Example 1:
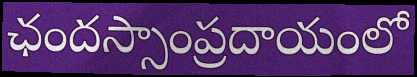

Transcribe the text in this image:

ఛందస్సాంప్రదాయంలో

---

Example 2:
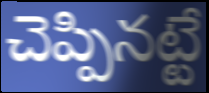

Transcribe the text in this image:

చెప్పినట్టే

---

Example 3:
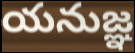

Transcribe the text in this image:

యనుజ్ఞ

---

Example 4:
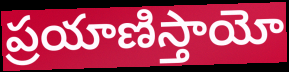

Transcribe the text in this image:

ప్రయాణిస్తాయో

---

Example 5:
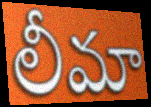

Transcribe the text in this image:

లీమా